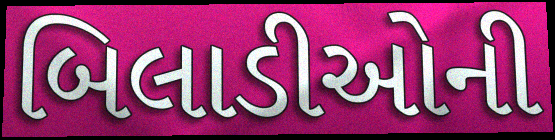
બિલાડીઓની